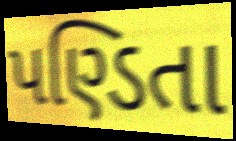
પણ્ડિતા